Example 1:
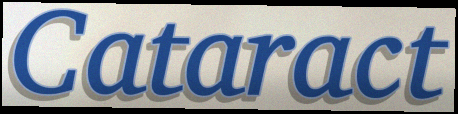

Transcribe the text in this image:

Cataract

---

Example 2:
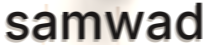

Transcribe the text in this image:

samwad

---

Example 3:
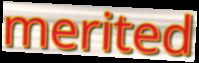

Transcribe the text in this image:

merited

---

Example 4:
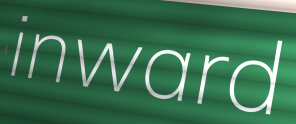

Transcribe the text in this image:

inward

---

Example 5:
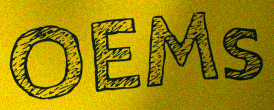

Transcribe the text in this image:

OEMs